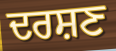
ਦਰਸ਼ਣ